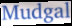
Mudgal